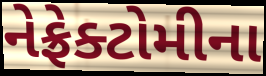
નેફ્રેક્ટોમીના